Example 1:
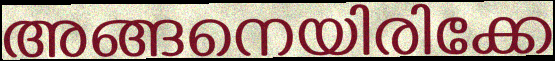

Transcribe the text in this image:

അങ്ങനെയിരിക്കേ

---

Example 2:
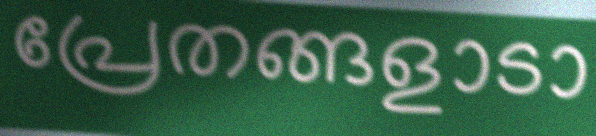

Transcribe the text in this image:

പ്രേതങ്ങളാടാ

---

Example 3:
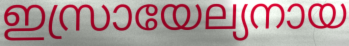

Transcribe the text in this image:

ഇസ്രായേല്യനായ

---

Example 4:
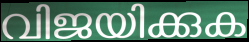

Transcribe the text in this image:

വിജയിക്കുക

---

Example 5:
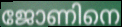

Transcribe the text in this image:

ജോണിനെ